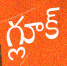
గ్లూక్